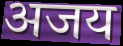
अजय